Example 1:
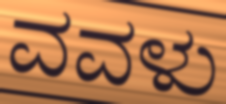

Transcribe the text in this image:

ವವಳು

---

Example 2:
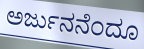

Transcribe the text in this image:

ಅರ್ಜುನನೆಂದೂ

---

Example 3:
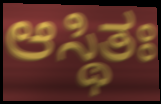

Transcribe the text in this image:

ಆಸ್ಥಿತಃ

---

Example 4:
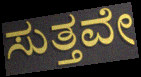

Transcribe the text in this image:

ಸುತ್ತವೇ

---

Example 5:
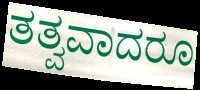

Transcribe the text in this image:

ತತ್ವವಾದರೂ